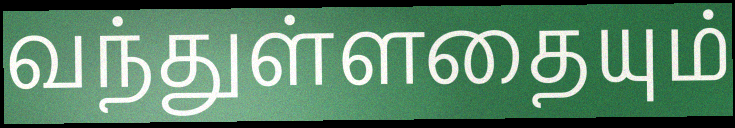
வந்துள்ளதையும்